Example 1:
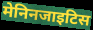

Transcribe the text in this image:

मेनिनजाइटिस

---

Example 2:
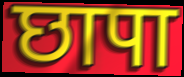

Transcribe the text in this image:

छापा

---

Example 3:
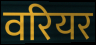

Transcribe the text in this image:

वरियर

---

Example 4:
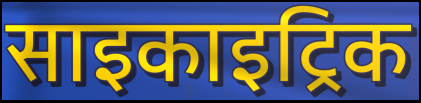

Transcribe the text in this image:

साइकाइट्रिक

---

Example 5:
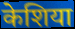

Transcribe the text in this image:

केशिया